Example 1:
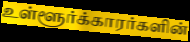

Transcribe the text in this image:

உள்ளூர்க்காரர்களின்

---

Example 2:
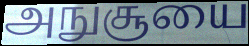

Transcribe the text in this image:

அநுசூயை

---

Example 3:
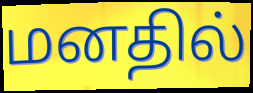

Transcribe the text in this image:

மனதில்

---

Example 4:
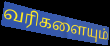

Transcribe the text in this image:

வரிகளையும்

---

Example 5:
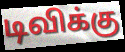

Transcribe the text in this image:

டிவிக்கு